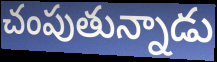
చంపుతున్నాడు